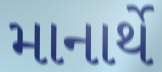
માનાર્થે